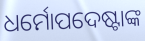
ଧର୍ମୋପଦେଷ୍ଟାଙ୍କ